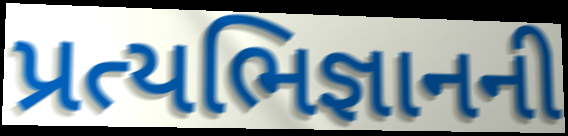
પ્રત્યભિજ્ઞાનની